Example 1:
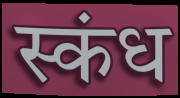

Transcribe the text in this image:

स्कंध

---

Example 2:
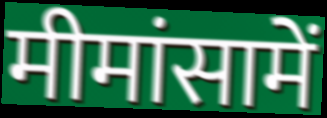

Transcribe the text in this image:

मीमांसामें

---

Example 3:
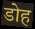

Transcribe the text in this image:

डोह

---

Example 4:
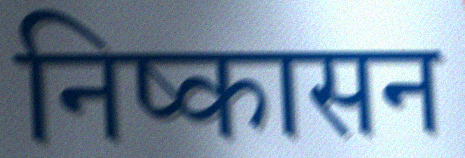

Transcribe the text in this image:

निष्कासन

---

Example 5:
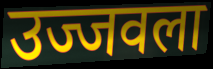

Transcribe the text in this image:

उज्जवला